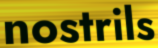
nostrils